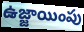
ఉజ్జాయింపు